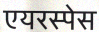
एयरस्पेस